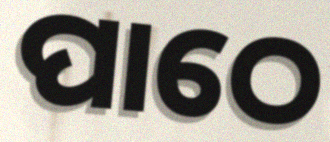
ପାଠେ